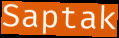
Saptak